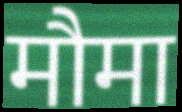
मौमा